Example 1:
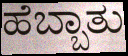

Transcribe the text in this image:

ಹೆಬ್ಬಾತು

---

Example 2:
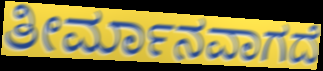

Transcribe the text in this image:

ತೀರ್ಮಾನವಾಗದೆ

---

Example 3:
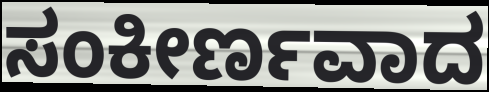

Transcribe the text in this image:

ಸಂಕೀರ್ಣವಾದ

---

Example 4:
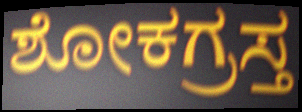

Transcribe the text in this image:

ಶೋಕಗ್ರಸ್ತ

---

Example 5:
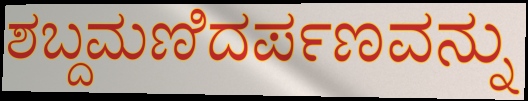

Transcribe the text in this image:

ಶಬ್ದಮಣಿದರ್ಪಣವನ್ನು